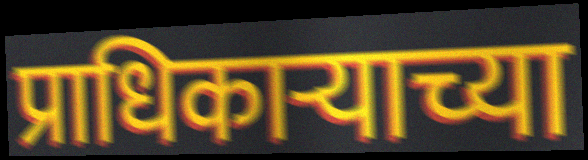
प्राधिकाऱ्याच्या